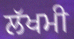
ਲੱਖਮੀ